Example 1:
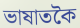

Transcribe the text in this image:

ভাষাতকৈ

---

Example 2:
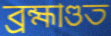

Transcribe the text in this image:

ব্ৰহ্মাণ্ডত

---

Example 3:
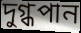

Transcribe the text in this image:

দুগ্ধপান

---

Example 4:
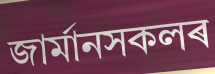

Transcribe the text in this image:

জাৰ্মানসকলৰ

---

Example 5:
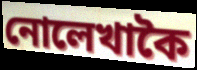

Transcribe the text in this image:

নোলেখাকৈ